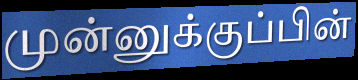
முன்னுக்குப்பின்